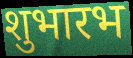
शुभारभ